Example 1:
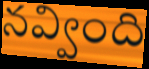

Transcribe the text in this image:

నవ్వింది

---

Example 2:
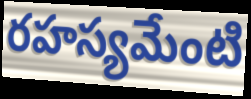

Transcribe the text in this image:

రహస్యమేంటి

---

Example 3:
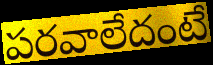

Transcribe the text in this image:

పరవాలేదంటే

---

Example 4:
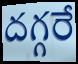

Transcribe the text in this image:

దగ్గరే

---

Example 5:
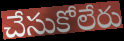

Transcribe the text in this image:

చేసుకోలేరు